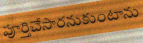
పూర్తిచేసారనుకుంటాను